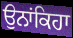
ਉਨਾਂਕਿਹਾ